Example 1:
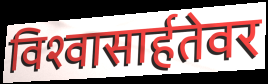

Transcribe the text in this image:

विश्वासार्हतेवर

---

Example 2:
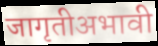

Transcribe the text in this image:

जागृतीअभावी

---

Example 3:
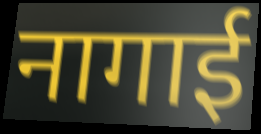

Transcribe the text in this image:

नागाई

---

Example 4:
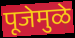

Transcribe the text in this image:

पूजेमुळे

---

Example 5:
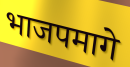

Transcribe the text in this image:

भाजपमागे